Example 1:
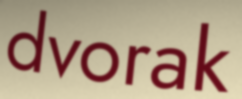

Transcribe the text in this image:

dvorak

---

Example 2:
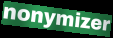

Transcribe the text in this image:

nonymizer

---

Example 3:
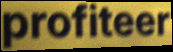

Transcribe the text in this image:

profiteer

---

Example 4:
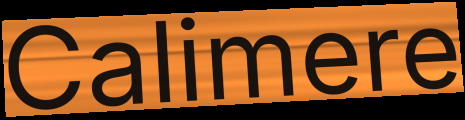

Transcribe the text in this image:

Calimere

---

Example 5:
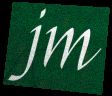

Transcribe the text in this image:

jm